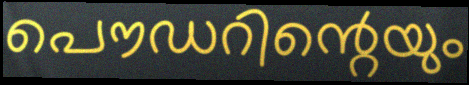
പൌഡറിന്റെയും